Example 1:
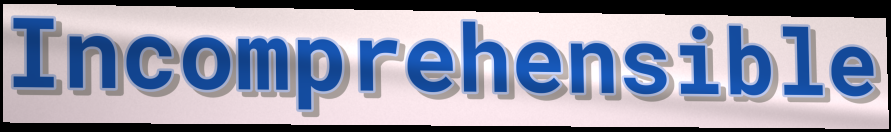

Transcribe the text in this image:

Incomprehensible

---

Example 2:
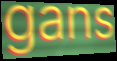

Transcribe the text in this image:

gans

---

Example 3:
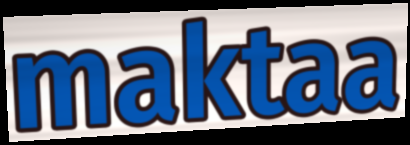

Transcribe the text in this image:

maktaa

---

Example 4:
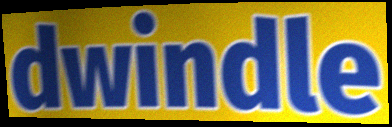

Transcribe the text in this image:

dwindle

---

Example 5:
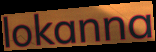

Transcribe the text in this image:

lokanna